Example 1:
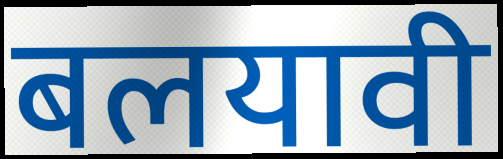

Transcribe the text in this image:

बलयावी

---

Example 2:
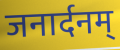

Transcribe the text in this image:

जनार्दनम्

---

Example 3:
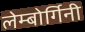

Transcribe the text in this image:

लेम्बोर्गिनी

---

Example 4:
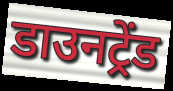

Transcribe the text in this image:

डाउनट्रेंड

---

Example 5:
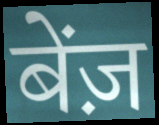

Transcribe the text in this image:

बेंज़